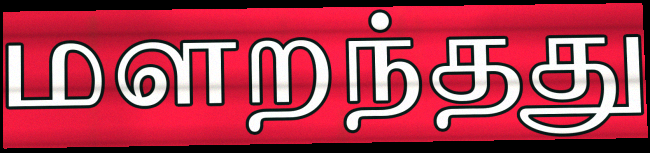
மளறந்தது